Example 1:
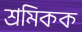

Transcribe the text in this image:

শ্ৰমিকক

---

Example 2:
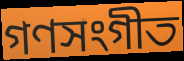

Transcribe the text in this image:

গণসংগীত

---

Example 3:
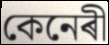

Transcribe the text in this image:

কেনেৰী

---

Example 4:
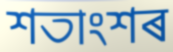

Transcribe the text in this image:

শতাংশৰ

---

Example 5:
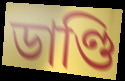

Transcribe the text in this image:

ডাণ্ডি